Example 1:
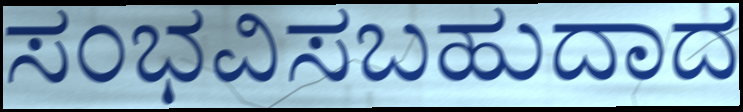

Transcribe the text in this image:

ಸಂಭವಿಸಬಹುದಾದ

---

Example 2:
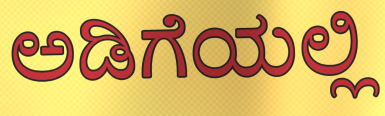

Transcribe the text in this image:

ಅಡಿಗೆಯಲ್ಲಿ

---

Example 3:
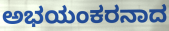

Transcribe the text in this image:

ಅಭಯಂಕರನಾದ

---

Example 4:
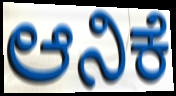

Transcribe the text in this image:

ಆನಿಕೆ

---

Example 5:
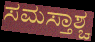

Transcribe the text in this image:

ಸಮಸ್ತಾಶ್ಚ